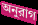
অনুরাগ